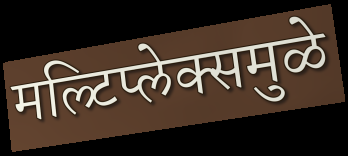
मल्टिप्लेक्समुळे